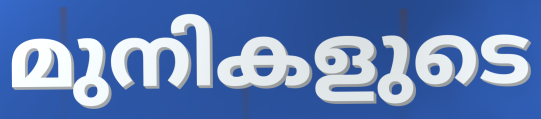
മുനികളുടെ